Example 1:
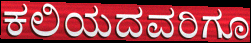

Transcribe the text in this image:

ಕಲಿಯದವರಿಗೂ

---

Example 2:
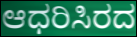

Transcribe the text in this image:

ಆಧರಿಸಿರದ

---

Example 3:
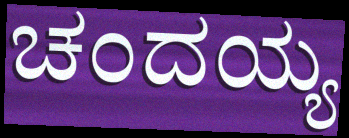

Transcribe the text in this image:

ಚಂದಯ್ಯ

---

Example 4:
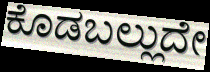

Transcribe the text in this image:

ಕೊಡಬಲ್ಲುದೇ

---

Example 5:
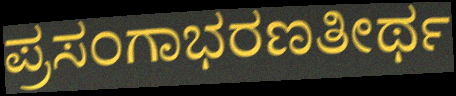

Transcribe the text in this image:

ಪ್ರಸಂಗಾಭರಣತೀರ್ಥ